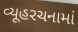
વ્યૂહરચનામાં